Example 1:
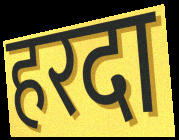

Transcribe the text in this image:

हरदा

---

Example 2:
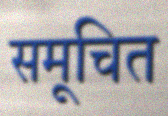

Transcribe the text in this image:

समूचित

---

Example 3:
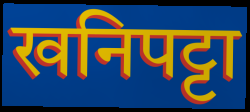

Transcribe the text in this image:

खनिपट्टा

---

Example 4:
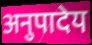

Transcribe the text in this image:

अनुपादेय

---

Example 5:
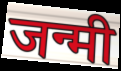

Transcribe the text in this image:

जन्मी